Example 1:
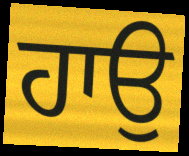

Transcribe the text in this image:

ਹਾਉ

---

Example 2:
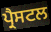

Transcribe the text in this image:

ਪ੍ਰੈਸਟਲ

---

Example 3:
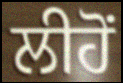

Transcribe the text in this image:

ਲੀਹੋਂ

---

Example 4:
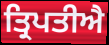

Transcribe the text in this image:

ਤ੍ਰਿਪਤੀਐ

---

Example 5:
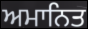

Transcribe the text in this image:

ਅਮਾਨਿਤ